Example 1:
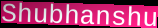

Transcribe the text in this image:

Shubhanshu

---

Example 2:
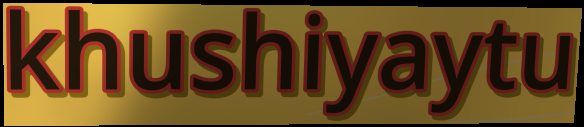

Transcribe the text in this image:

khushiyaytu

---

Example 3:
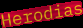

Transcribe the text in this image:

Herodias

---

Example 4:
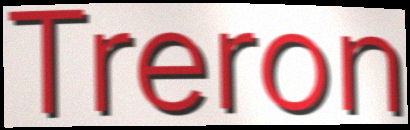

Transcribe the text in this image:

Treron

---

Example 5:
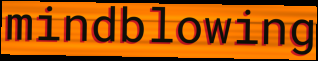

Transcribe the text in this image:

mindblowing